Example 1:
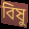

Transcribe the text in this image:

বিষু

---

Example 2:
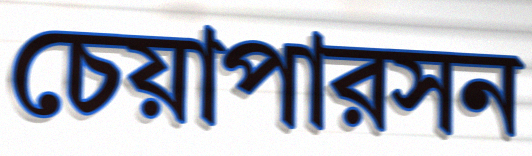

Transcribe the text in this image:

চেয়াপারসন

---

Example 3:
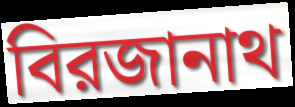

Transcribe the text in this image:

বিরজানাথ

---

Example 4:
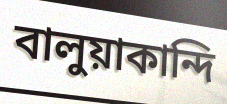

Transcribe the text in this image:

বালুয়াকান্দি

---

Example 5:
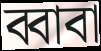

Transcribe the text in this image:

ব্বাবা